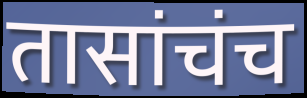
तासांचंच